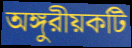
অঙ্গুরীয়কটি